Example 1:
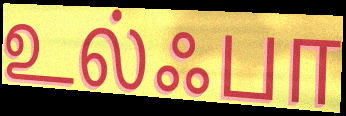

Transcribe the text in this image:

உல்ஃபா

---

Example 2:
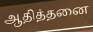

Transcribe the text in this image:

ஆதித்தனை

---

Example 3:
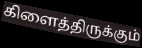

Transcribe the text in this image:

கிளைத்திருக்கும்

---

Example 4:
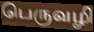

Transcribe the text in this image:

பெருவழி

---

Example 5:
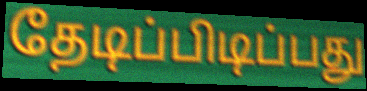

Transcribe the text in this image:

தேடிப்பிடிப்பது